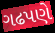
ગઢપણે